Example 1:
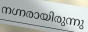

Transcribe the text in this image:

നഗ്നരായിരുന്നു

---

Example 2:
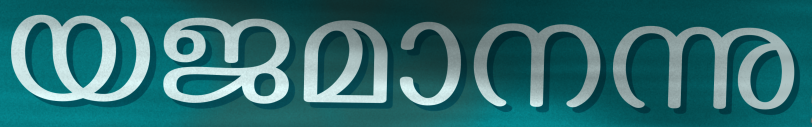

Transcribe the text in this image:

യജമാനന്നു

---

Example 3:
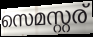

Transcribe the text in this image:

സെമസ്റ്റര്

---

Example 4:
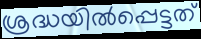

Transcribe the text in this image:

ശ്രദ്ധയിൽപ്പെട്ടത്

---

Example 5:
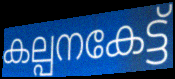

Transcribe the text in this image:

കല്പനകേട്ട്